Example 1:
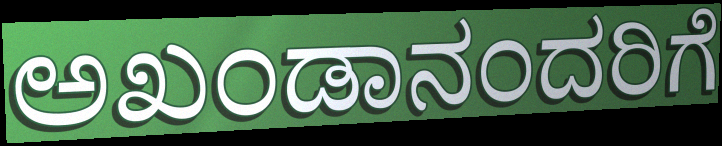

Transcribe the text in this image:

ಅಖಂಡಾನಂದರಿಗೆ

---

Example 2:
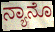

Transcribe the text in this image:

ನ್ಯಾನೊ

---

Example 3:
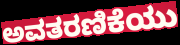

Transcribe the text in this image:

ಅವತರಣಿಕೆಯು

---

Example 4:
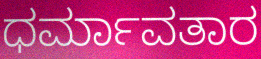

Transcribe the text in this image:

ಧರ್ಮಾವತಾರ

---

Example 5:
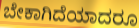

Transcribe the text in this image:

ಬೇಕಾಗಿದೆಯಾದರೂ